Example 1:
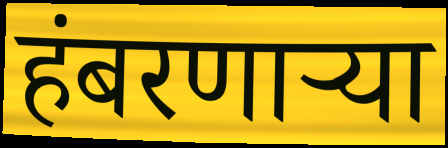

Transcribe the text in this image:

हंबरणाऱ्या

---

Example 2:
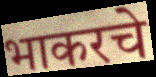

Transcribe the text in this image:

भाकरचे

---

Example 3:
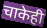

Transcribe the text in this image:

चाकेही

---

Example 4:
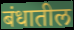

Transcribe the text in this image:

बंधातील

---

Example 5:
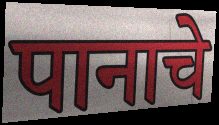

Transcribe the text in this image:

पानाचे